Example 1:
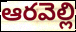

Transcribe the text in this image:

ఆరవెల్లి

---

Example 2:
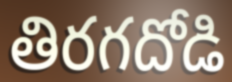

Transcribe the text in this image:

తిరగదోడి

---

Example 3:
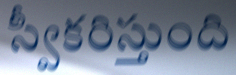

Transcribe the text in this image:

స్వీకరిస్తుంది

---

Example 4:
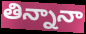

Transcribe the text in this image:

తిన్నానా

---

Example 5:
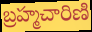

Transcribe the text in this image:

బ్రహ్మచారిణి